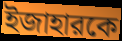
ইজাহারকে